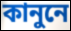
কানুনে